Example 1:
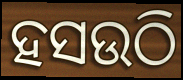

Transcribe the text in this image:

ହସଉଠି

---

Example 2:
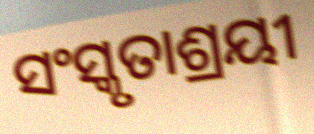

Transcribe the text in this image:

ସଂସ୍କୃତାଶ୍ରୟୀ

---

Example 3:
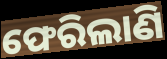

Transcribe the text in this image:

ଫେରିଲାଣି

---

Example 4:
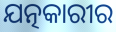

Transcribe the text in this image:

ଯତ୍ନକାରୀର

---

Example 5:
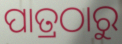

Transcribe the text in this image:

ପାତ୍ରଠାରୁ